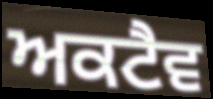
ਅਕਟੈਵ